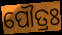
ପୌତ୍ରଃ